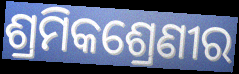
ଶ୍ରମିକଶ୍ରେଣୀର